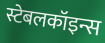
स्टेबलकॉइन्स